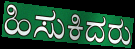
ಹಿಸುಕಿದರು